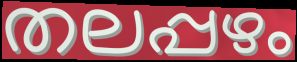
തലപ്പഴം